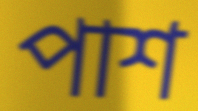
পাশ